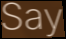
Say